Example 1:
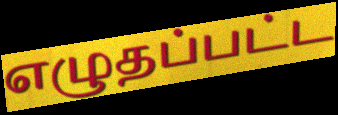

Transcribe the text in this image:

எழுதப்பட்ட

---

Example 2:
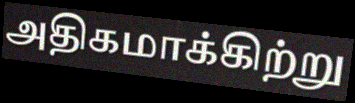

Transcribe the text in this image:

அதிகமாக்கிற்று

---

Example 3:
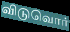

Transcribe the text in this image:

விடுவொர்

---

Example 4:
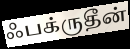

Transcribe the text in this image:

ஃபக்ருதீன்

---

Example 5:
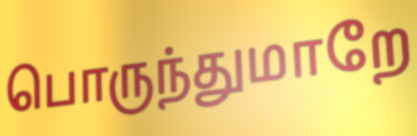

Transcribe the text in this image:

பொருந்துமாறே